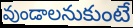
వుండాలనుకుంటే